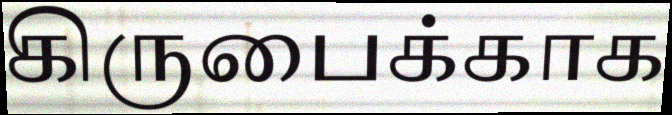
கிருபைக்காக